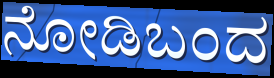
ನೋಡಿಬಂದ